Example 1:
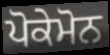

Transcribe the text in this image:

ਪੋਕੇਮੋਨ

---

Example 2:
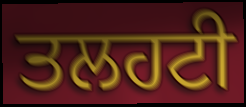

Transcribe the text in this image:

ਤਲਹਟੀ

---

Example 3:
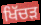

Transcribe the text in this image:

ਖਿੱਚੜ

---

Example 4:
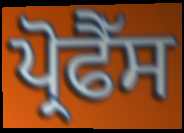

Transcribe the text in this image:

ਪ੍ਰੋਫੈੱਸ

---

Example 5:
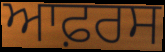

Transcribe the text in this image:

ਆਫ਼ਰਸ